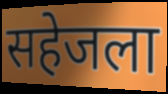
सहेजला